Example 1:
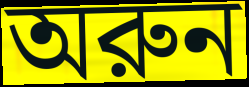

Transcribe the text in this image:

অরুন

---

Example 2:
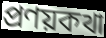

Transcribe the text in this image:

প্রণয়কথা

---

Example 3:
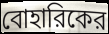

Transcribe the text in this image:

বোহারিকের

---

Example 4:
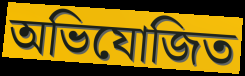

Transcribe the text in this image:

অভিযোজিত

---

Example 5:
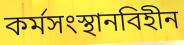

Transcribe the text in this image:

কর্মসংস্থানবিহীন